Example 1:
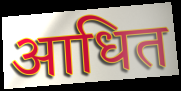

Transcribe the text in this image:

आधित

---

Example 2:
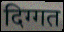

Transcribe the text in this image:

दिग्गत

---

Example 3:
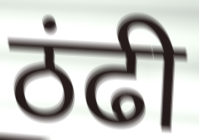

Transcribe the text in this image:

ठंढी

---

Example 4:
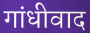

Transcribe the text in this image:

गांधीवाद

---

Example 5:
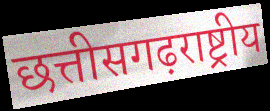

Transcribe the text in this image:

छत्तीसगढ़राष्ट्रीय